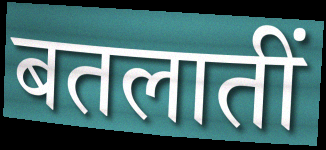
बतलातीं